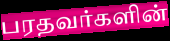
பரதவர்களின்